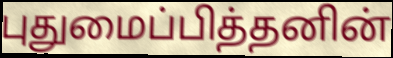
புதுமைப்பித்தனின்